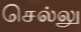
செல்லு